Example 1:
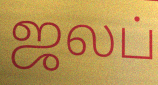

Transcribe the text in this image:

ஜலப்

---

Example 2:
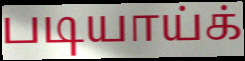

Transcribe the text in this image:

படியாய்க்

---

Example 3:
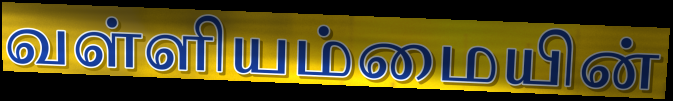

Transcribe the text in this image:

வள்ளியம்மையின்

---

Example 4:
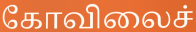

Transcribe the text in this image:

கோவிலைச்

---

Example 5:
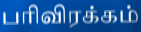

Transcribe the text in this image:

பரிவிரக்கம்